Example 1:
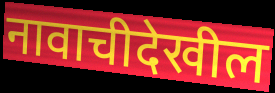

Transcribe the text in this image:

नावाचीदेखील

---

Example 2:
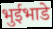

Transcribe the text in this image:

भुईभाडे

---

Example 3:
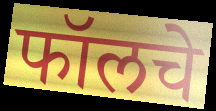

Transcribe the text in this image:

फॉलचे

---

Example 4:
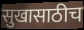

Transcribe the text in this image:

सुखासाठीच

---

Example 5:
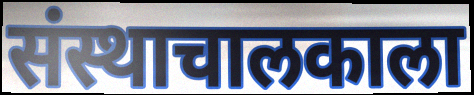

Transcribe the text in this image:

संस्थाचालकाला